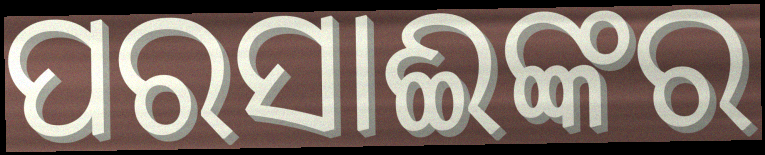
ପରସାଈଙ୍କର